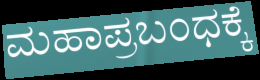
ಮಹಾಪ್ರಬಂಧಕ್ಕೆ